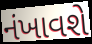
નંખાવશે